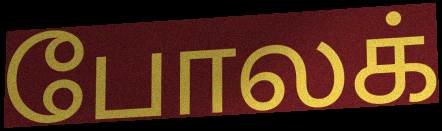
போலக்